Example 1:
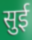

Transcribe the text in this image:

सुई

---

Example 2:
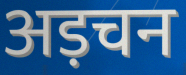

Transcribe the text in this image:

अड़चन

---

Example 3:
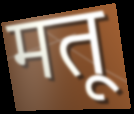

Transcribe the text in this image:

मतू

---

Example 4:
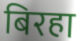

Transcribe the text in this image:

बिरहा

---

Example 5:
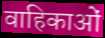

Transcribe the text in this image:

वाहिकाओं